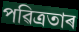
পৱিত্ৰতাৰ